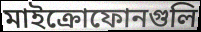
মাইক্রোফোনগুলি